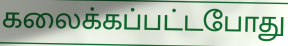
கலைக்கப்பட்டபோது